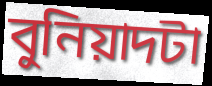
বুনিয়াদটা